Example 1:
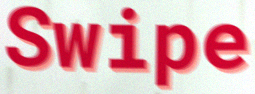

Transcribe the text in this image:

Swipe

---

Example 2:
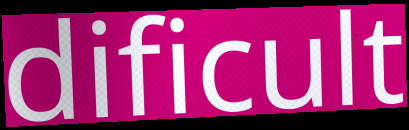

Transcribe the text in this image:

dificult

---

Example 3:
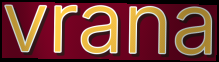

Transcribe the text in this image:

vrana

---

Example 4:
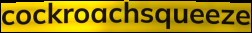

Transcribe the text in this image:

cockroachsqueeze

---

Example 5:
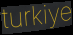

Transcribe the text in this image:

turkiye